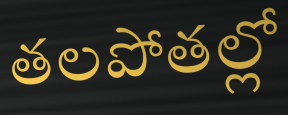
తలపోతల్లో